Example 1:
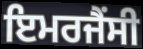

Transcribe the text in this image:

ਇਮਰਜੈਂਸੀ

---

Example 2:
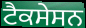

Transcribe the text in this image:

ਟੈਕਸੇਸਨ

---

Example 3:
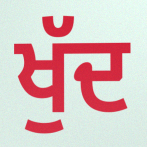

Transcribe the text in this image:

ਖੁੱਦ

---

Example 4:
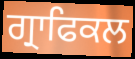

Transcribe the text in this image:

ਗ੍ਰਾਫਿਕਲ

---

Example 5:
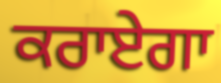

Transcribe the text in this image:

ਕਰਾਏਗਾ